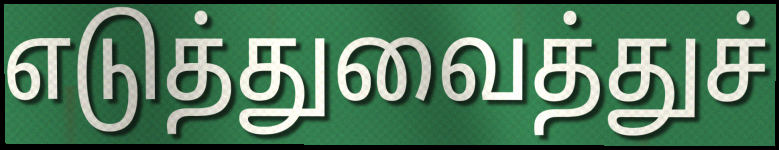
எடுத்துவைத்துச்